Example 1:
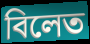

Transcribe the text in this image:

বিলেত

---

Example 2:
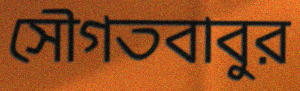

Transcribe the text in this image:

সৌগতবাবুর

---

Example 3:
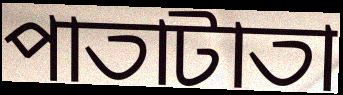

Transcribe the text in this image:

পাতাটাতা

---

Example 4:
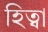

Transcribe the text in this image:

হিত্বা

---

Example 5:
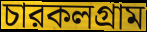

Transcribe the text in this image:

চারকলগ্রাম